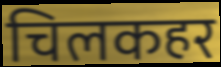
चिलकहर